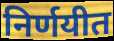
निर्णयीत